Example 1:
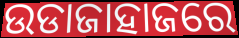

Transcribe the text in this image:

ଉଡାଜାହାଜରେ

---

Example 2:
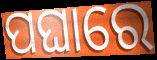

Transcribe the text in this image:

ପଘାରେ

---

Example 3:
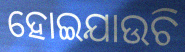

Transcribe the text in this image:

ହୋଇଯାଉଚି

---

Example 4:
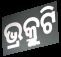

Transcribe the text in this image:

ଭ୍ର୍ରୁକୁଟି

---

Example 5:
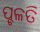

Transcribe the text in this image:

ପ୍ଚଳତି